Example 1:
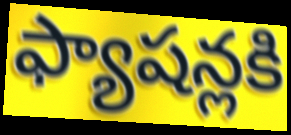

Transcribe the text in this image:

ఫ్యాషన్లకి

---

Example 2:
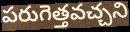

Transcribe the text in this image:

పరుగెత్తవచ్చని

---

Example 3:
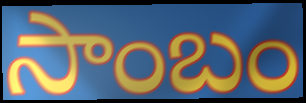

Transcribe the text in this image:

సాంబం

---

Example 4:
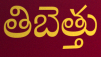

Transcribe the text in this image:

తిబెత్తు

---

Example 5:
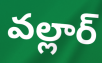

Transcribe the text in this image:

వల్లార్